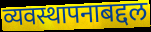
व्यवस्थापनाबद्दल